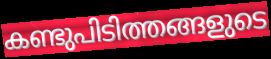
കണ്ടുപിടിത്തങ്ങളുടെ